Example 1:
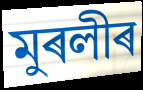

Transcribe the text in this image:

মুৰলীৰ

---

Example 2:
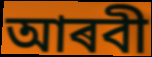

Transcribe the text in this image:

আৰবী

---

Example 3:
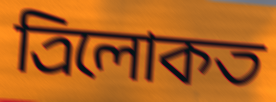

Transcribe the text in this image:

ত্ৰিলোকত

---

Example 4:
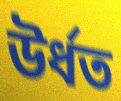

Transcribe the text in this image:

উৰ্ধত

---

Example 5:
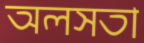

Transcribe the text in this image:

অলসতা